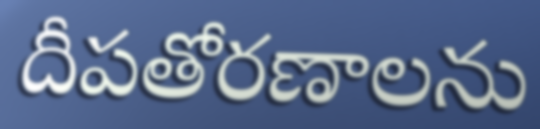
దీపతోరణాలను